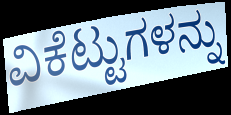
ವಿಕೆಟ್ಟುಗಳನ್ನು